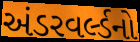
અંડરવર્લ્ડનો